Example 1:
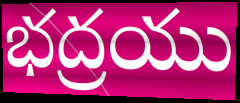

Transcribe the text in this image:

భద్రయు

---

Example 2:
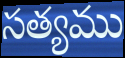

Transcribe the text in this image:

సత్యము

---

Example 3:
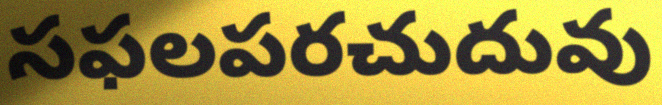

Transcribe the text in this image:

సఫలపరచుదువు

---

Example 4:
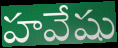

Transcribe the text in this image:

హవేషు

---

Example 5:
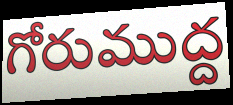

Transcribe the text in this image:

గోరుముద్ద